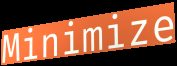
Minimize